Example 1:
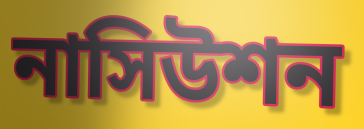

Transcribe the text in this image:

নাসিউশন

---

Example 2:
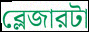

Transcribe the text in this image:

ব্লেজারটা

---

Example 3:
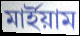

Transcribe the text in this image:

মার্ইয়াম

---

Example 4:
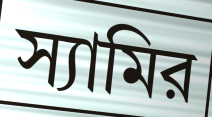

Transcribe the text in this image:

স্যামির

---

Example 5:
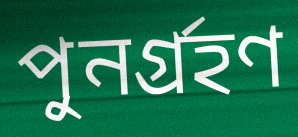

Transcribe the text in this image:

পুনর্গ্রহণ